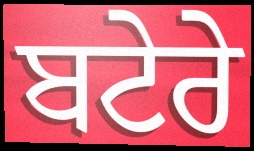
ਬਟੇਰੇ